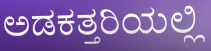
ಅಡಕತ್ತರಿಯಲ್ಲಿ